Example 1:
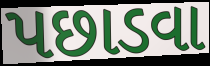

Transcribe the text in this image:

પછાડવા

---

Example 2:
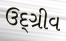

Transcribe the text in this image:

ઉદ્ગ્રીવ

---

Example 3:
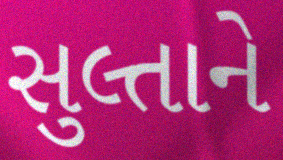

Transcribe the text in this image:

સુલ્તાને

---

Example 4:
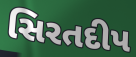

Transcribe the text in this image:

સિરતદીપ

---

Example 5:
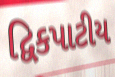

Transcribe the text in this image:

દ્વિકપાટીય